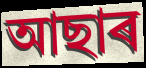
আছাৰ